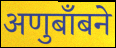
अणुबाँबने